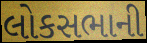
લોકસભાની